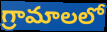
గ్రామాలలో